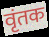
वृंतक